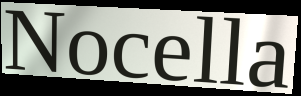
Nocella